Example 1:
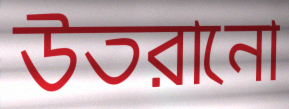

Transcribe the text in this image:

উতরানো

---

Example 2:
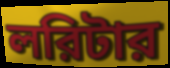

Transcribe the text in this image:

লরিটার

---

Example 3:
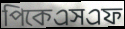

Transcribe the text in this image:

পিকেএসএফ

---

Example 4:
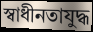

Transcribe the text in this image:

স্বাধীনতাযুদ্ধ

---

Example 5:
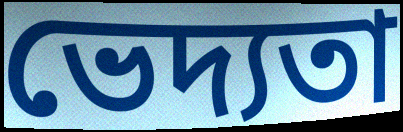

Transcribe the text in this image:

ভেদ্যতা